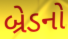
બ્રેડનો